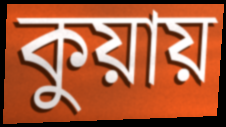
কুয়ায়